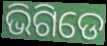
ଭିଗିଡେ